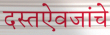
दस्तऐवजांचे